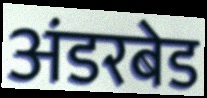
अंडरबेड